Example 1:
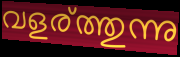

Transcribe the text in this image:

വളര്ത്തുന്നു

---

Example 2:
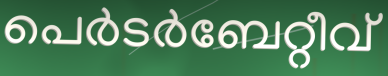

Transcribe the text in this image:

പെർടർബേറ്റീവ്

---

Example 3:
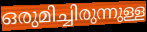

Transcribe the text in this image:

ഒരുമിച്ചിരുന്നുള്ള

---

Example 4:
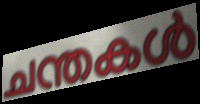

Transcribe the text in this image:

ചന്തകൾ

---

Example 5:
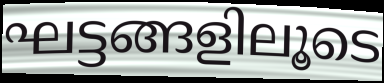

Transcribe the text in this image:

ഘട്ടങ്ങളിലൂടെ